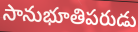
సానుభూతిపరుడు